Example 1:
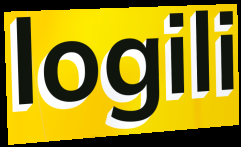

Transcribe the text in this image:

logili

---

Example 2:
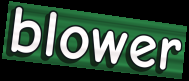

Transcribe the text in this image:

blower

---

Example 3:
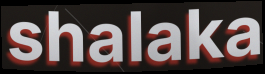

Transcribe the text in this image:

shalaka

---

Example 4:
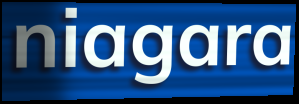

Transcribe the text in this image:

niagara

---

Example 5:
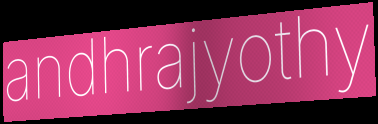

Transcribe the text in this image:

andhrajyothy